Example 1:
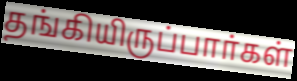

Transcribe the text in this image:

தங்கியிருப்பார்கள்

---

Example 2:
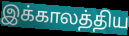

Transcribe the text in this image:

இக்காலத்திய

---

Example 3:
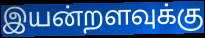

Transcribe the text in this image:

இயன்றளவுக்கு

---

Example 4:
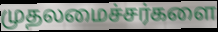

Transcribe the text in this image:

முதலமைச்சர்களை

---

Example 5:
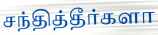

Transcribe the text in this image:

சந்தித்தீர்களா